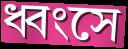
ধ্বংসে